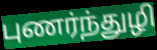
புணர்ந்துழி